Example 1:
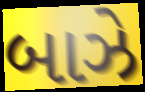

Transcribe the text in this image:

બાઝે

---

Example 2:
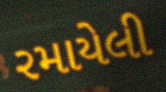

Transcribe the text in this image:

રમાયેલી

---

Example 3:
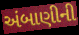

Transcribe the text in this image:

અંબાણીની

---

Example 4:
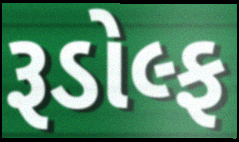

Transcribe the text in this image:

રૂડોલ્ફ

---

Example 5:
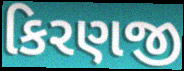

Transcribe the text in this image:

કિરણજી